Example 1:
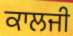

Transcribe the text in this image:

ਕਾਲਜੀ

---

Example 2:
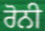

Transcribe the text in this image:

ਰੋਨੀ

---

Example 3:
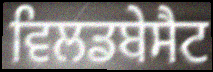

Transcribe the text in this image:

ਵਿਲਡਬੇਸੈਟ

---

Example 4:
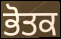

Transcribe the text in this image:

ਭੋਤਕ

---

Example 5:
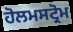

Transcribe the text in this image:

ਹੋਲਮਸਟ੍ਰੋਮ